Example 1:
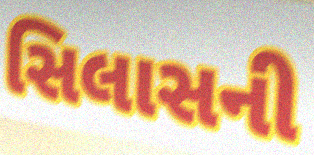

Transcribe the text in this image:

સિલાસની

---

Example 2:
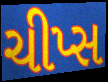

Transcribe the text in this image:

ચીપ્સ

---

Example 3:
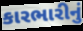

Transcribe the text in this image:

કારભારીનું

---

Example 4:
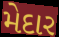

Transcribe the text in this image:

મેદાર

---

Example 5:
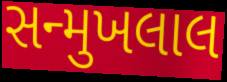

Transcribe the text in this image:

સન્મુખલાલ